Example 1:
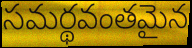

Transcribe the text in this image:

సమర్థవంతమైన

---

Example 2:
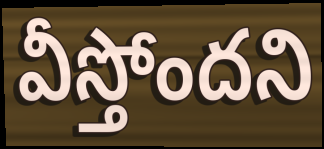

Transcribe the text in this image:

వీస్తోందని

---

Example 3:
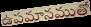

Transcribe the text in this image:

ఉపమానముతో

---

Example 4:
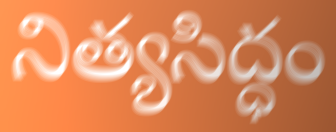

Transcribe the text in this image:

నిత్యసిద్ధం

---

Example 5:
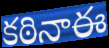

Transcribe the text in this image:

కఠినాఈ